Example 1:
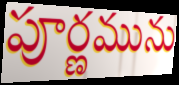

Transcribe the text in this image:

పూర్ణమును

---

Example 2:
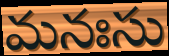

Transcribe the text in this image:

మనఃసు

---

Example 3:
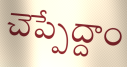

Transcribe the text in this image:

చెప్పేద్దాం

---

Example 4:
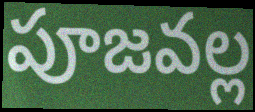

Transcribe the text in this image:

పూజవల్ల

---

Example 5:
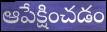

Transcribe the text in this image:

ఆపేక్షించడం